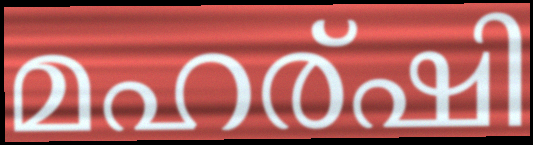
മഹര്ഷി